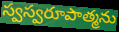
స్వస్వరూపాత్మను